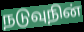
நடுவுநின்